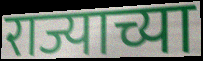
राज्याच्या